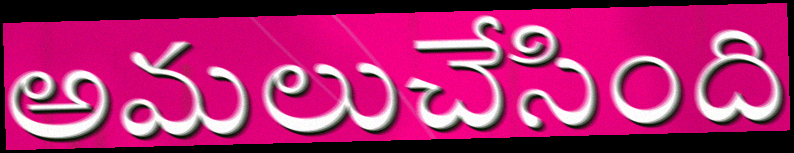
అమలుచేసింది